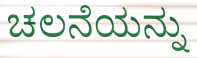
ಚಲನೆಯನ್ನು